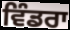
ਵਿੰਡਰਾ